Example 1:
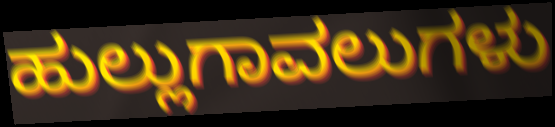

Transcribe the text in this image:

ಹುಲ್ಲುಗಾವಲುಗಳು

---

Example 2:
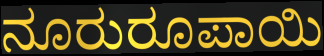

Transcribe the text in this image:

ನೂರುರೂಪಾಯಿ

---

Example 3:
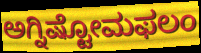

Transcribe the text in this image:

ಅಗ್ನಿಷ್ಟೋಮಫಲಂ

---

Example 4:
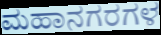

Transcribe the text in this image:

ಮಹಾನಗರಗಳ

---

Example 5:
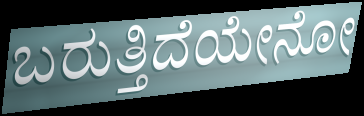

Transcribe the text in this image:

ಬರುತ್ತಿದೆಯೇನೋ